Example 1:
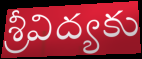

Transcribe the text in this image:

శ్రీవిద్యకు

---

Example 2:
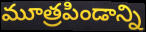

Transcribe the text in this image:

మూత్రపిండాన్ని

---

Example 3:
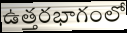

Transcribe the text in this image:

ఉత్తరభాగంలో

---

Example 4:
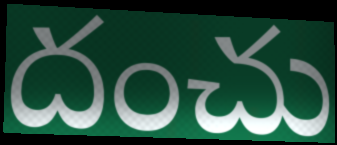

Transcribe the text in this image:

దంచు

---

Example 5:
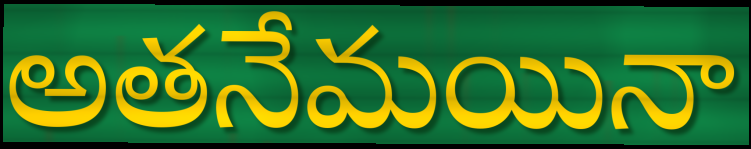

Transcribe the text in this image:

అతనేమయినా